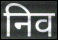
निव